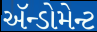
ઍન્ડોમેન્ટ